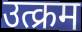
उत्क्रम